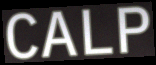
CALP